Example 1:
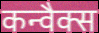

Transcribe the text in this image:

कन्वैक्स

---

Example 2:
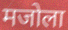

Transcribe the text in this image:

मजोला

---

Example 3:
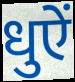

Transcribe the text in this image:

धुऐं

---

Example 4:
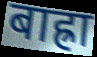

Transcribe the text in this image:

बाह्रा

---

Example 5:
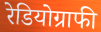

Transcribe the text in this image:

रेडियोग्राफी